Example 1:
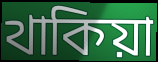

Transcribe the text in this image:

থাকিয়া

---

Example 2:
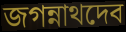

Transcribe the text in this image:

জগন্নাথদেব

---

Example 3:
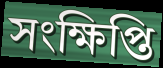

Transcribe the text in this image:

সংক্ষিপ্তি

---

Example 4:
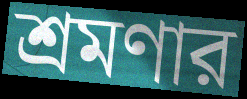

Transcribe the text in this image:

শ্রমণার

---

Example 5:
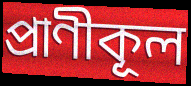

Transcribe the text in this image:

প্রাণীকূল